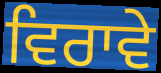
ਵਿਰਾਵੇ